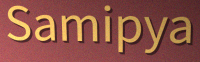
Samipya